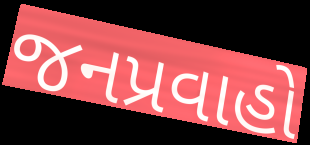
જનપ્રવાહો